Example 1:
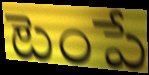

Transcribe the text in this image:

టెంపే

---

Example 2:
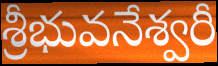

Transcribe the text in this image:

శ్రీభువనేశ్వరీ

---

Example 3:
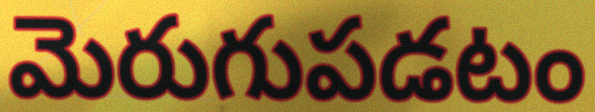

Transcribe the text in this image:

మెరుగుపడటం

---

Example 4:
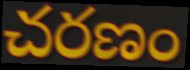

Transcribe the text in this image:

చరణం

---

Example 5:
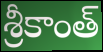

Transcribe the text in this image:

శ్రీకాంత్